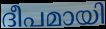
ദീപമായി